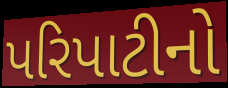
પરિપાટીનો